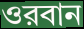
ওরবান